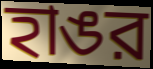
হাঙর